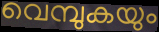
വെമ്പുകയും